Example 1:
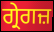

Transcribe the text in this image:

ਗ੍ਰੇਗਜ਼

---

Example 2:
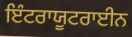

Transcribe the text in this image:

ਇੰਟਰਾਯੂਟਰਾਈਨ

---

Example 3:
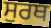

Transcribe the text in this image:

ਸੁਰਥ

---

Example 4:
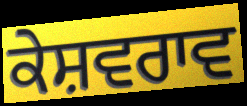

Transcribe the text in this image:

ਕੇਸ਼ਵਰਾਵ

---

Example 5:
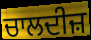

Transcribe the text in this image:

ਚਾਲਦੀਜ਼